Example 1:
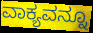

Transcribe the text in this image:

ವಾಕ್ಯವನ್ನೂ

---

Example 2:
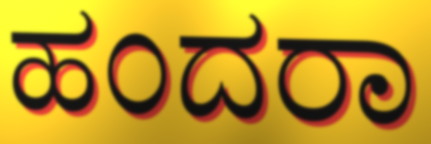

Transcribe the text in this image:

ಹಂದರಾ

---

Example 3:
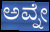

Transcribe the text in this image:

ಅವ್ನೇ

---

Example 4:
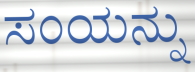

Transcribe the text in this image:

ಸಂಯನ್ನು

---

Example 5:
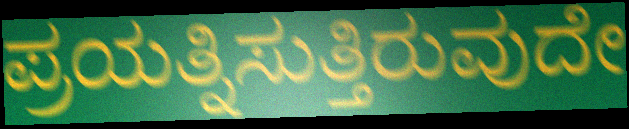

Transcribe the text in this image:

ಪ್ರಯತ್ನಿಸುತ್ತಿರುವುದೇ